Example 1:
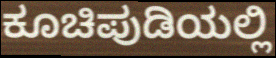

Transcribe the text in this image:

ಕೂಚಿಪುಡಿಯಲ್ಲಿ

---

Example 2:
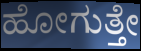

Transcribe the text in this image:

ಹೋಗುತ್ತೇ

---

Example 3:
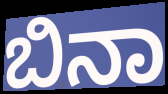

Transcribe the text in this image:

ಬಿನಾ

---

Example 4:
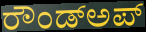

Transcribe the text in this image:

ರೌಂಡ್ಅಪ್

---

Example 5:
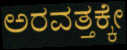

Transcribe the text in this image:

ಅರವತ್ತಕ್ಕೇ